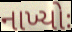
નાખ્યોઃ